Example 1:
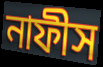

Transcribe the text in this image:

নাফীস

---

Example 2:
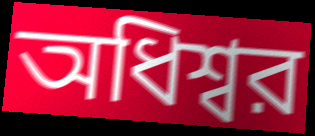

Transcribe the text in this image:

অধিশ্বর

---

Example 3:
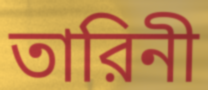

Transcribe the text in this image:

তারিনী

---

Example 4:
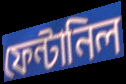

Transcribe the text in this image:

ফেন্টানিল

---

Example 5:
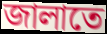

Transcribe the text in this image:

জালাতে